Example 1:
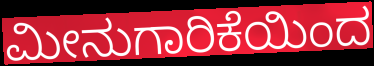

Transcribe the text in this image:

ಮೀನುಗಾರಿಕೆಯಿಂದ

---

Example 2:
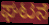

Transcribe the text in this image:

ಘಟನೆ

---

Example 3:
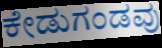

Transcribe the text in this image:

ಕೇಡುಗಂಡವು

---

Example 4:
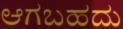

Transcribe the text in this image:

ಆಗಬಹದು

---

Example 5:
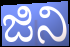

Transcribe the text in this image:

ಜಿನಿ